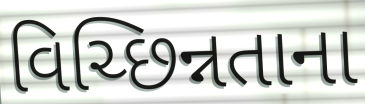
વિચ્છિન્નતાના